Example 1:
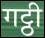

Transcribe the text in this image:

गट्ठी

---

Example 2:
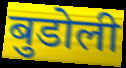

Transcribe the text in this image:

बुडोली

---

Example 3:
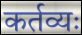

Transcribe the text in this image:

कर्तव्यः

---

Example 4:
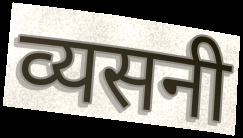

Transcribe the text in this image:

व्यसनी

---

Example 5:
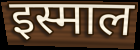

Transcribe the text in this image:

इस्माल